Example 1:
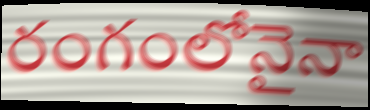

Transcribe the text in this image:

రంగంలోనైనా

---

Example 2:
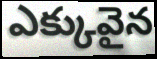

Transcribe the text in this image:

ఎక్కువైన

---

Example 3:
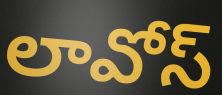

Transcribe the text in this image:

లావోస్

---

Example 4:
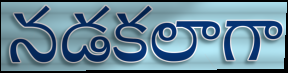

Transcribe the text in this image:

నడకలాగా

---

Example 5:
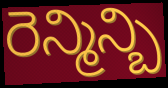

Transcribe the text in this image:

రెన్మిన్బి